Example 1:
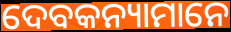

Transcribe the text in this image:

ଦେବକନ୍ୟାମାନେ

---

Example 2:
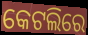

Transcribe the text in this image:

କେଟଲିରେ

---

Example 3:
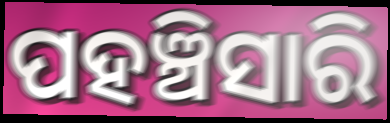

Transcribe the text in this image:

ପହଞ୍ଚିସାରି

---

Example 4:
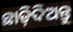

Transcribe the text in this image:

ଛାଡ଼ିଦିଅନ୍ତୁ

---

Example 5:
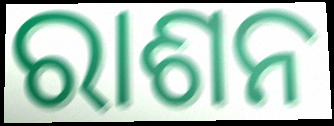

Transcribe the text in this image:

ରାଶନ